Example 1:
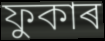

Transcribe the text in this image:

ফুকাৰ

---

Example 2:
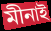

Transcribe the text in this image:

মীনাই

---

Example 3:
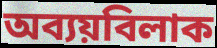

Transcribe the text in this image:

অব্যয়বিলাক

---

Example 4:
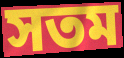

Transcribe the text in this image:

সতম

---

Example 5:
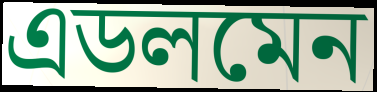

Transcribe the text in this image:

এডলমেন